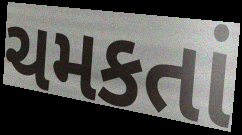
ચમકતાં